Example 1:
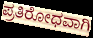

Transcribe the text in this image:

ಪ್ರತಿರೋಧವಾಗಿ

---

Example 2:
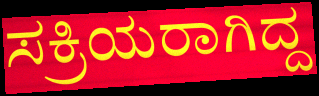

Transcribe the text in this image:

ಸಕ್ರಿಯರಾಗಿದ್ದ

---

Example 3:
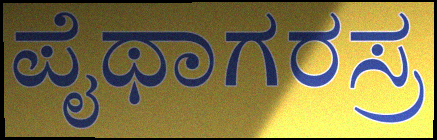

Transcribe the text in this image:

ಪೈಥಾಗರಸ್ರ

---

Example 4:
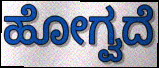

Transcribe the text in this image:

ಹೋಗ್ವದೆ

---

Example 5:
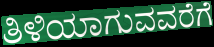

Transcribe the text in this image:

ತಿಳಿಯಾಗುವವರೆಗೆ